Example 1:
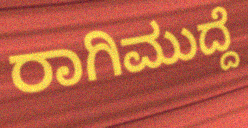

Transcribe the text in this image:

ರಾಗಿಮುದ್ದೆ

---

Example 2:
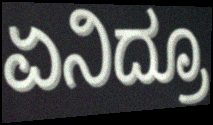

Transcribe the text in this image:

ಏನಿದ್ರೂ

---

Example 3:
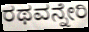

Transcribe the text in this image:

ರಥವನ್ನೇರಿ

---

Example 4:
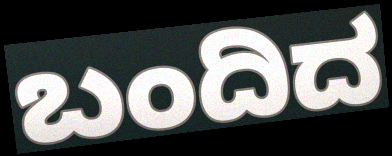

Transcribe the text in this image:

ಬಂದಿದ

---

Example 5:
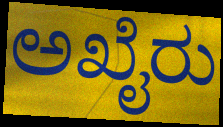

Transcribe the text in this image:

ಅಖೈರು